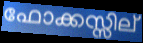
ഫോക്കസ്സില്